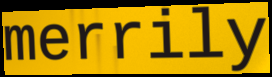
merrily